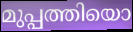
മുപ്പത്തിയൊ